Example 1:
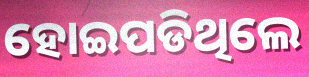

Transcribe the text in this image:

ହୋଇପଡିଥିଲେ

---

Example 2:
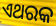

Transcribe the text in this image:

ଏଥରକ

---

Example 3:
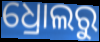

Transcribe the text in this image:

ଧ୍ରୋଲରୁ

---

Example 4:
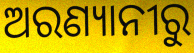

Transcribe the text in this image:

ଅରଣ୍ୟାନୀରୁ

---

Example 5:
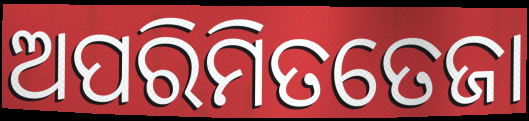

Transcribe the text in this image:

ଅପରିମିତତେଜା